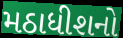
મઠાધીશનો